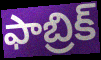
ఫాబ్రిక్